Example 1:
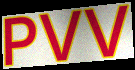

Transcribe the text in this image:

PVV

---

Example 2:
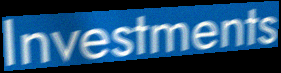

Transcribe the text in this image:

Investments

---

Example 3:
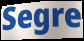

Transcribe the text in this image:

Segre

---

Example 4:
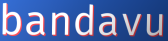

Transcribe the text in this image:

bandavu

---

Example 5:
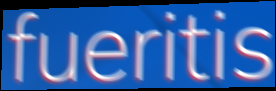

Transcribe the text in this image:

fueritis